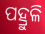
ପହ୍ରୁଳି